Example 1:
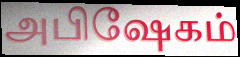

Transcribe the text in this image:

அபிஷேகம்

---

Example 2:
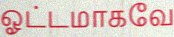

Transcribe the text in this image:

ஓட்டமாகவே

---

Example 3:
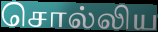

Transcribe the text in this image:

சொல்லிய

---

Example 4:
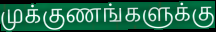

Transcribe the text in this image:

முக்குணங்களுக்கு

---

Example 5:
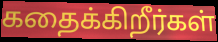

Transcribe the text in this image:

கதைக்கிறீர்கள்